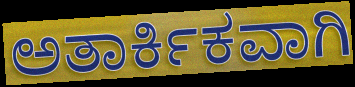
ಅತಾರ್ಕಿಕವಾಗಿ